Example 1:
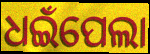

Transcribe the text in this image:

ଧଇଁପେଲା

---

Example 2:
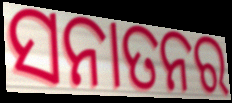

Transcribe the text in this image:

ସନାତନର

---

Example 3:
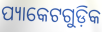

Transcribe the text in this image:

ପ୍ୟାକେଟଗୁଡ଼ିକ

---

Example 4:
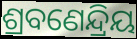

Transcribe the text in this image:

ଶ୍ରବଣେନ୍ଦ୍ରିୟ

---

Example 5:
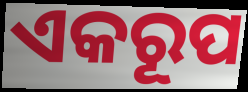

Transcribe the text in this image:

ଏକରୂପ